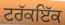
ਟਰੱਕਇੱਕ